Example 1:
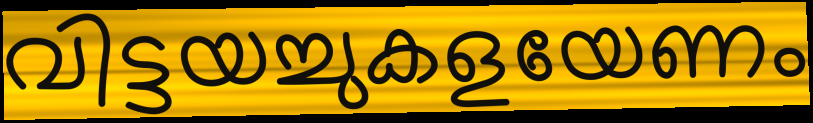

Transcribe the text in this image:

വിട്ടയച്ചുകളയേണം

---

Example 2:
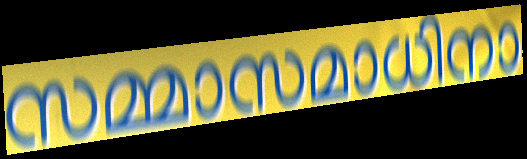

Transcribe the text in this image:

സമ്മാസമാധിനാ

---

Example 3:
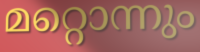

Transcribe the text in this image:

മറ്റൊന്നും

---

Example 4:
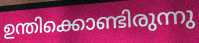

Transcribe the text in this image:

ഉന്തിക്കൊണ്ടിരുന്നു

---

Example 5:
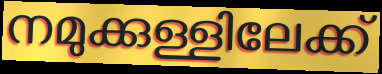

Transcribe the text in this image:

നമുക്കുള്ളിലേക്ക്